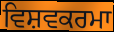
ਵਿਸ਼ਵਕਰਮਾ